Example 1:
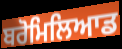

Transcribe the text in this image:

ਬਰੋਮਿਲਿਆਡ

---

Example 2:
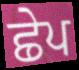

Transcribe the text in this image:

ਛੇਪ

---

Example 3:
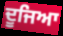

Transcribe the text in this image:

ਦੂਜਿਆ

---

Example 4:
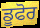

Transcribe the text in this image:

ਡੂਫੋਰ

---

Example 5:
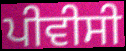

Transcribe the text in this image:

ਪੀਵੀਸੀ